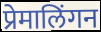
प्रेमालिंगन